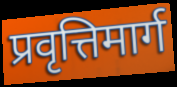
प्रवृत्तिमार्ग